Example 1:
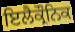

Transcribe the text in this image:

ਇਲੈਕ੍ਰੌਨਿਕ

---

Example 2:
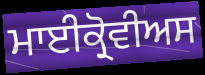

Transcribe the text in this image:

ਮਾਈਕ੍ਰੋਵੀਅਸ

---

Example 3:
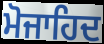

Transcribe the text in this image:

ਮੋਜਾਹਿਦ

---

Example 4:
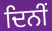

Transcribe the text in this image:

ਦਿਨੀਂ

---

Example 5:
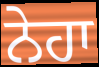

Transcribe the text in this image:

ਨੇਹਾ